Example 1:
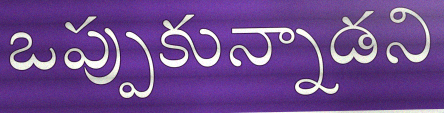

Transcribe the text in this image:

ఒప్పుకున్నాడని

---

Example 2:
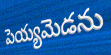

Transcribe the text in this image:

పెయ్యమెడను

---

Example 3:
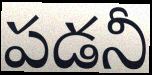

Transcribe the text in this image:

పడనీ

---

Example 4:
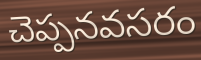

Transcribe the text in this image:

చెప్పనవసరం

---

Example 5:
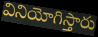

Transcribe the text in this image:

వినియోగిస్తారు